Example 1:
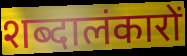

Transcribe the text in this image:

शब्दालंकारों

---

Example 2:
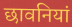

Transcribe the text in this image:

छावनियां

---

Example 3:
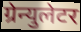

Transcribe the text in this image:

ग्रेन्युलेटर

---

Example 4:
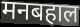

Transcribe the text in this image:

मनबहाल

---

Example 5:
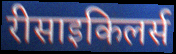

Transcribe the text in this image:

रीसाइकिलर्स